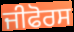
ਜੀਫੋਰਸ